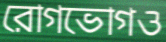
রোগভোগও